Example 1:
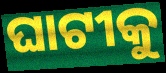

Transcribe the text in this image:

ଘାଟୀକୁ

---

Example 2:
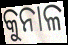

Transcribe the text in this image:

କୁନାଳ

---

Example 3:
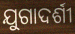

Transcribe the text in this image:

ଯୁଗାଦର୍ଶୀ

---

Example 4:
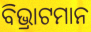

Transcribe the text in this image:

ବିଭ୍ରାଟମାନ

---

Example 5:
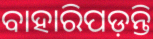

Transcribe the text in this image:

ବାହାରିପଡ଼ନ୍ତି